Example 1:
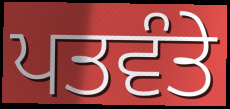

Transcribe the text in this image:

ਪਤਵੰਤੇ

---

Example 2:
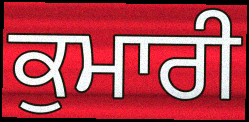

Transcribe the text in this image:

ਕੁਮਾਰੀ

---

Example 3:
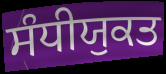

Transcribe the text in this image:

ਸੰਧੀਯੁਕਤ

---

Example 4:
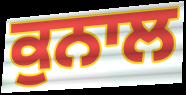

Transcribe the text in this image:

ਕੁਨਾਲ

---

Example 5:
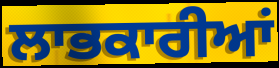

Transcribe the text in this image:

ਲਾਭਕਾਰੀਆਂ